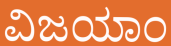
ವಿಜಯಾಂ